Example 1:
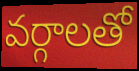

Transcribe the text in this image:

వర్గాలతో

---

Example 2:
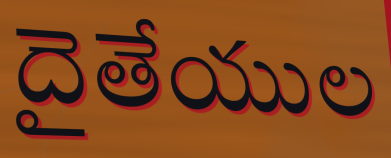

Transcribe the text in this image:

దైతేయుల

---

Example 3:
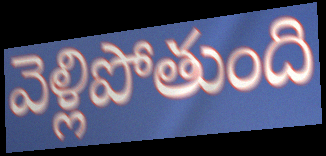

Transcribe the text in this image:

వెళ్లిపోతుంది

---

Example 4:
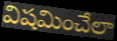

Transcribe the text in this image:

విషమించేలా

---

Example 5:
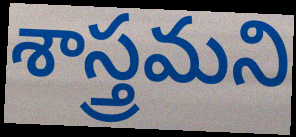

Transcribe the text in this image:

శాస్త్రమని